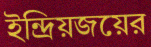
ইন্দ্রিয়জয়ের